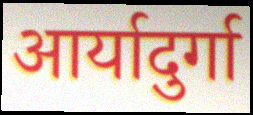
आर्यादुर्गा